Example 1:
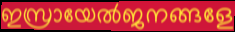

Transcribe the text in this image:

ഇസ്രായേൽജനങ്ങളേ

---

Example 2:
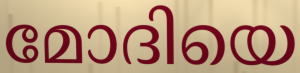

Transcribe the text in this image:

മോദിയെ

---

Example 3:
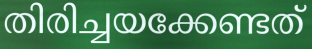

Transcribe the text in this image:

തിരിച്ചയക്കേണ്ടത്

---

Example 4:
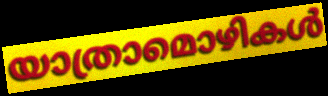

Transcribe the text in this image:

യാത്രാമൊഴികൾ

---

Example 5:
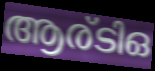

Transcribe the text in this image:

ആര്ടിഒ